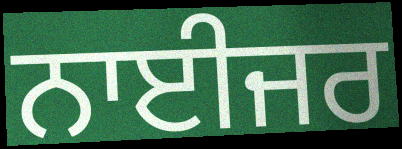
ਨਾਈਜਰ